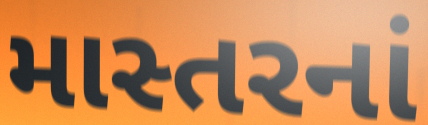
માસ્તરનાં